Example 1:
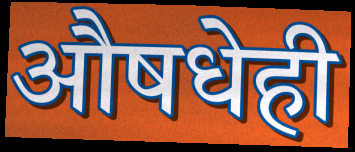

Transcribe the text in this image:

औषधेही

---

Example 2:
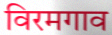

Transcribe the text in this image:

विरमगाव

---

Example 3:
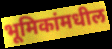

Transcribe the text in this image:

भूमिकांमधील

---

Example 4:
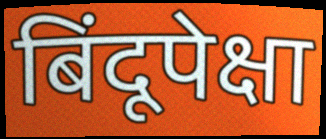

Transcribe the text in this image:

बिंदूपेक्षा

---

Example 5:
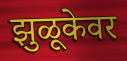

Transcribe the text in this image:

झुळूकेवर